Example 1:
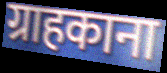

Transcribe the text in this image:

ग्राहकाना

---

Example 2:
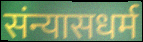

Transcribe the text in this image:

संन्यासधर्म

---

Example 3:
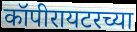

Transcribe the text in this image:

कॉपीरायटरच्या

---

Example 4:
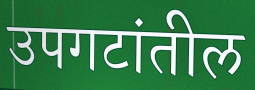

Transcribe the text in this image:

उपगटांतील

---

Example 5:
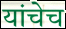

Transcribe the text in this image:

यांचेच